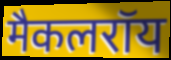
मैकलरॉय